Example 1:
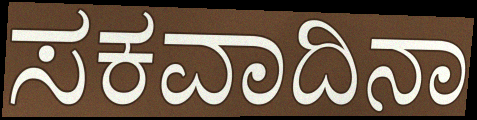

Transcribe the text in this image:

ಸಕವಾದಿನಾ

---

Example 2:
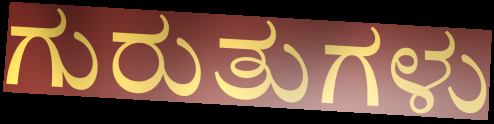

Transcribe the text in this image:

ಗುರುತುಗಳು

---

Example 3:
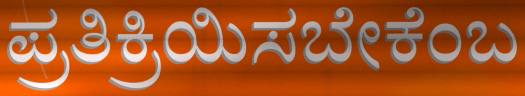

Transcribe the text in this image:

ಪ್ರತಿಕ್ರಿಯಿಸಬೇಕೆಂಬ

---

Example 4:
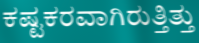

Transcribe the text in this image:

ಕಷ್ಟಕರವಾಗಿರುತ್ತಿತ್ತು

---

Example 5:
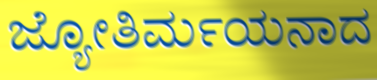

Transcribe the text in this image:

ಜ್ಯೋತಿರ್ಮಯನಾದ